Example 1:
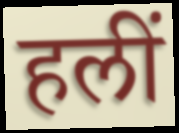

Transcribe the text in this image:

हलीं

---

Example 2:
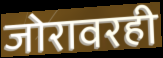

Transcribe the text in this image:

जोरावरही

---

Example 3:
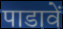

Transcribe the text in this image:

पाडावें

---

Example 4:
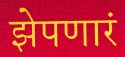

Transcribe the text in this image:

झेपणारं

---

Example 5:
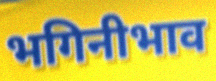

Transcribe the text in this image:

भगिनीभाव